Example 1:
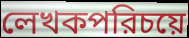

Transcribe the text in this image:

লেখকপরিচয়ে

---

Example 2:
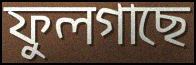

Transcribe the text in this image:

ফুলগাছে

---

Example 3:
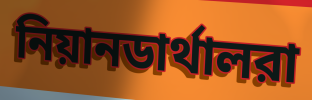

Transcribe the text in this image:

নিয়ানডার্থালরা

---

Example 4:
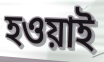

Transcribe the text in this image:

হওয়াই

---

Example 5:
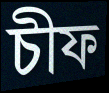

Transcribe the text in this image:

চীফ